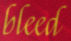
bleed